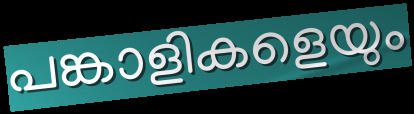
പങ്കാളികളെയും